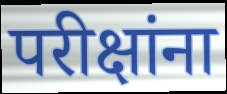
परीक्षांना